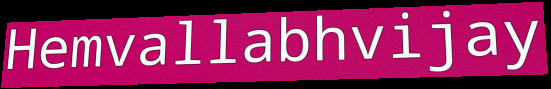
Hemvallabhvijay